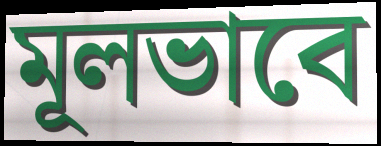
মূলভাবে